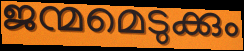
ജന്മമെടുക്കും